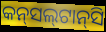
କନ୍‌ସଲ୍‌ଟାନ୍‌ସି